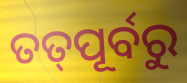
ତତ୍‌ପୂର୍ବରୁ